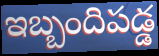
ఇబ్బందిపడ్డ